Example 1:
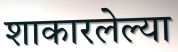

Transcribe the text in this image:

शाकारलेल्या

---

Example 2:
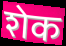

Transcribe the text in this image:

शेक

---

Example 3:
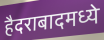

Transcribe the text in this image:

हैदराबादमध्ये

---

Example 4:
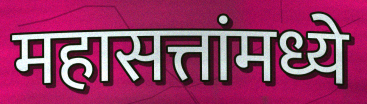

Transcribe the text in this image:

महासत्तांमध्ये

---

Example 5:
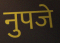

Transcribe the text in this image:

नुपजे